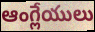
ఆంగ్లేయులు